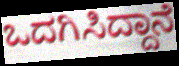
ಒದಗಿಸಿದ್ದಾನೆ